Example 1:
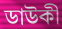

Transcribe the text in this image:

ডাউকী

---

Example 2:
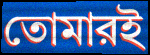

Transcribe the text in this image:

তোমারই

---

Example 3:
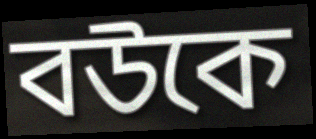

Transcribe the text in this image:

বউকে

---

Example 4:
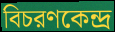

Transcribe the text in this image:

বিচরণকেন্দ্র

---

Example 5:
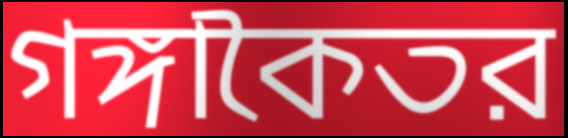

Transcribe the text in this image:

গঙ্গাকৈতর